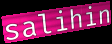
salihin